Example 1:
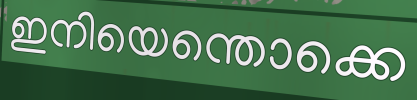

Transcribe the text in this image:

ഇനിയെന്തൊക്കെ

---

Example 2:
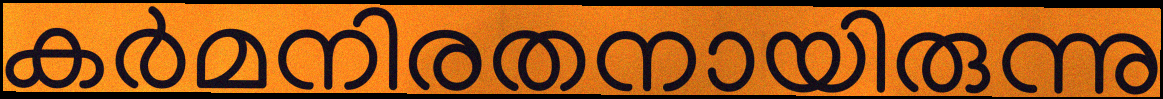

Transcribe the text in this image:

കർമനിരതനായിരുന്നു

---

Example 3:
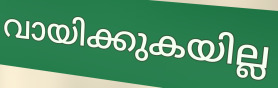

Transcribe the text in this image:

വായിക്കുകയില്ല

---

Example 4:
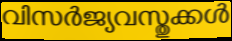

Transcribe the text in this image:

വിസർജ്യവസ്തുക്കൾ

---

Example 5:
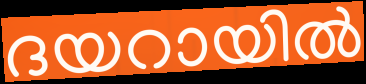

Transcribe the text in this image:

ദയറായിൽ